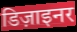
डिज़ाइनर